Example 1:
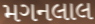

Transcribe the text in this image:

મગનલાલ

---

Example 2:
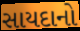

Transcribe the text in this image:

સાયદાનો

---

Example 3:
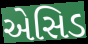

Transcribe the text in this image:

એસિડ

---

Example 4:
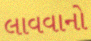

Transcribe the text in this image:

લાવવાનો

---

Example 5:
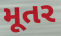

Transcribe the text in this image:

મૂતર